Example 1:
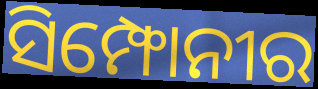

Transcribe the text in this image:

ସିମ୍ଫୋନୀର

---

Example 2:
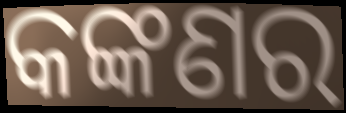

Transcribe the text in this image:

କଙ୍କଣର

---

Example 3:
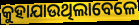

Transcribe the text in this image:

କୁହାଯାଉଥିଲାବେଳେ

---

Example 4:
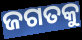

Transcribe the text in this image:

ଜଗତକୁ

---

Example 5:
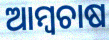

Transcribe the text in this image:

ଆମ୍ୱଚାଷ